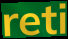
reti